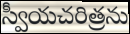
స్వీయచరిత్రను